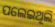
ପଲେଇଥିଲି